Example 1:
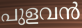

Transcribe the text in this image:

പുളവൻ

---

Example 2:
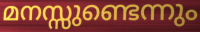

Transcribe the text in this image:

മനസ്സുണ്ടെന്നും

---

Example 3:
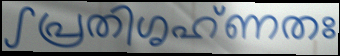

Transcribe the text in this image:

ഽപ്രതിഗൃഹ്ണതഃ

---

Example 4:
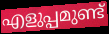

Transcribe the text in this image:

എളുപ്പമുണ്ട്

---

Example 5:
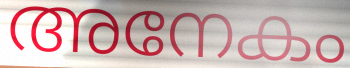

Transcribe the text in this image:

അനേകം